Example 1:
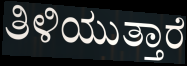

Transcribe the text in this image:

ತಿಳಿಯುತ್ತಾರೆ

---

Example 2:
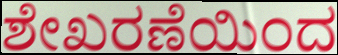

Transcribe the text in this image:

ಶೇಖರಣೆಯಿಂದ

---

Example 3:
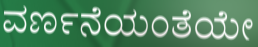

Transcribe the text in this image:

ವರ್ಣನೆಯಂತೆಯೇ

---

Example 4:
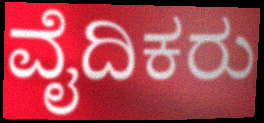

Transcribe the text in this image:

ವೈದಿಕರು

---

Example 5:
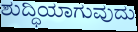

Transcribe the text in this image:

ಶುದ್ಧಿಯಾಗುವುದು